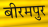
बीरमपुर